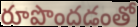
రూపొందడంతో